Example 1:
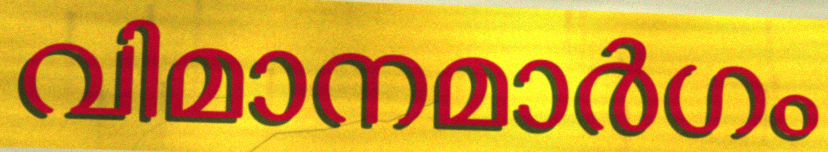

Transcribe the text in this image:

വിമാനമാർഗം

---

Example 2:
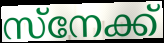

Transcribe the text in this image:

സ്നേക്ക്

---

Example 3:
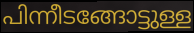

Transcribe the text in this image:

പിന്നീടങ്ങോട്ടുള്ള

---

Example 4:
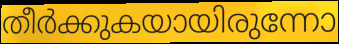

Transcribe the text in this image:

തീർക്കുകയായിരുന്നോ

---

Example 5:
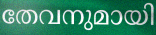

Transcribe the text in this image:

തേവനുമായി